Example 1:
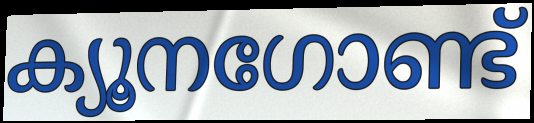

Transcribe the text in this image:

ക്യൂനഗോണ്ട്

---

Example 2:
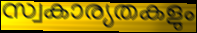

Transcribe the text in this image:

സ്വകാര്യതകളും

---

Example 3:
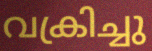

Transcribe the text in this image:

വക്രിച്ചു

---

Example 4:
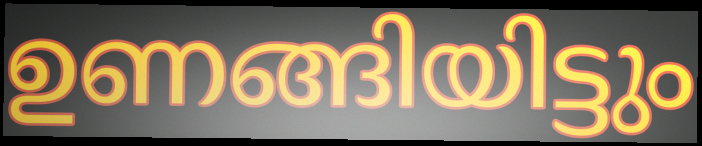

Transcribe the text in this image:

ഉണങ്ങിയിട്ടും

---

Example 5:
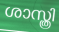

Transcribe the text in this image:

ശാസ്ത്രി